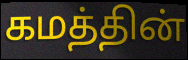
கமத்தின்